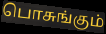
பொசுங்கும்